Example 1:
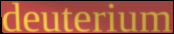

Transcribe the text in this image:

deuterium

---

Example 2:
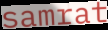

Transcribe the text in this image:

samrat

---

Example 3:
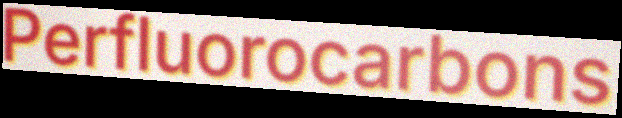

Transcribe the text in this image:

Perfluorocarbons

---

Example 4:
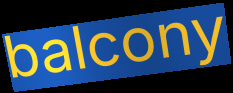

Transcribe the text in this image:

balcony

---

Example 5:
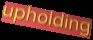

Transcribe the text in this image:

upholding